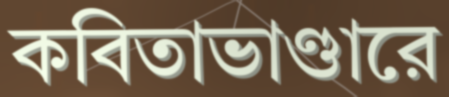
কবিতাভাণ্ডারে